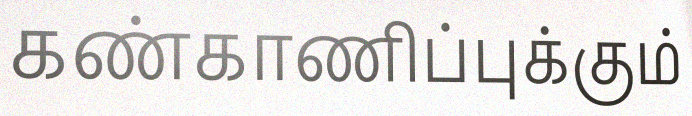
கண்காணிப்புக்கும்